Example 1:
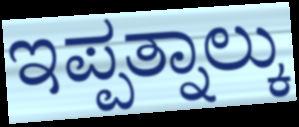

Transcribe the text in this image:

ಇಪ್ಪತ್ನಾಲ್ಕು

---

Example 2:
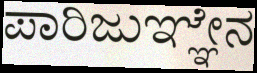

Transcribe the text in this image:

ಪಾರಿಜುಞ್ಞೇನ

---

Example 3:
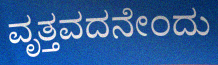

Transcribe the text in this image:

ವೃತ್ತವದನೇಂದು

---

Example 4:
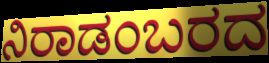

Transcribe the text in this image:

ನಿರಾಡಂಬರದ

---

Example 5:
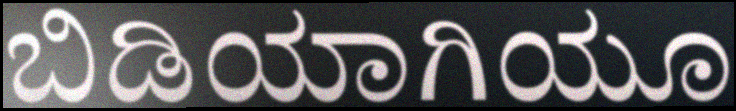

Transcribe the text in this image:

ಬಿಡಿಯಾಗಿಯೂ